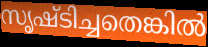
സൃഷ്ടിച്ചതെങ്കിൽ